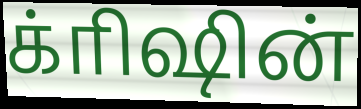
க்ரிஷின்